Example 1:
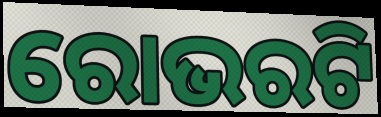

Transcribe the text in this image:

ରୋଭରଟି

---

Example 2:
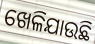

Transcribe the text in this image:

ଖେଳିଯାଉଛି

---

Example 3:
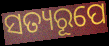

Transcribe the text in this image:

ସତ୍ୟରୂପେ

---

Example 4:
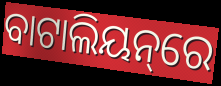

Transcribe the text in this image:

ବାଟାଲିୟନ୍‌ରେ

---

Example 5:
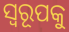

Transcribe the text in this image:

ସ୍ବରୂପକୁ